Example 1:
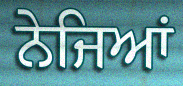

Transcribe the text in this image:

ਨੇਜਿਆਂ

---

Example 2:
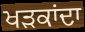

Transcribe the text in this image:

ਖੜਕਾਂਦਾ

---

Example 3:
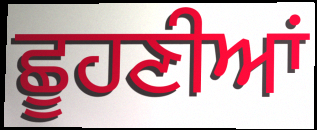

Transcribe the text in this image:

ਛੂਹਣੀਆਂ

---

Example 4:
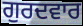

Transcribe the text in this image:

ਗੁਰਦਵਾਰ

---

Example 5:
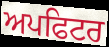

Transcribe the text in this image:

ਅਪਫਿਟਰ